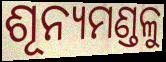
ଶୂନ୍ୟମଣ୍ଡଳୁ